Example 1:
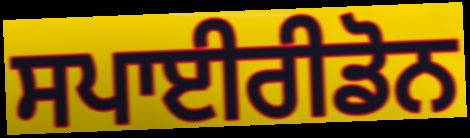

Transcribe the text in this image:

ਸਪਾਈਰੀਡੋਨ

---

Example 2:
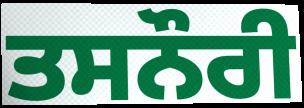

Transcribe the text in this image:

ਤਸਨੌਰੀ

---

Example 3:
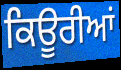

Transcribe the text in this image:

ਕਿਊਰੀਆਂ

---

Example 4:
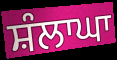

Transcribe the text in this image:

ਸ਼ੰਲਾਘਾ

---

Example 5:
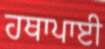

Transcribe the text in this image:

ਹਥਾਪਾਈ